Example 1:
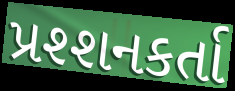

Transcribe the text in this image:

પ્રશ્શનકર્તા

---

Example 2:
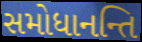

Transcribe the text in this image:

સમોધાનન્તિ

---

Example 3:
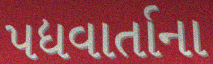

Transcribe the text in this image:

પદ્યવાર્તાના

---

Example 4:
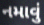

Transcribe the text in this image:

નમાવું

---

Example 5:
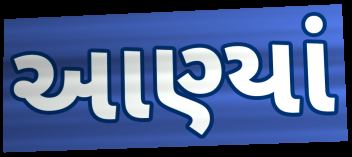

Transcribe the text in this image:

આણ્યાં